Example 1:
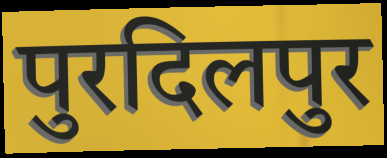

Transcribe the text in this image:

पुरदिलपुर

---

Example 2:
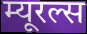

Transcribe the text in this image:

म्यूरल्स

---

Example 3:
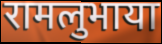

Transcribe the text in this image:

रामलुभाया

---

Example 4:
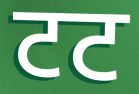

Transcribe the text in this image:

टट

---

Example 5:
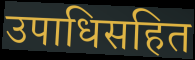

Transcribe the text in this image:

उपाधिसहित